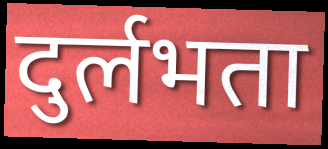
दुर्लभता